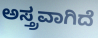
ಅಸ್ತ್ರವಾಗಿದೆ